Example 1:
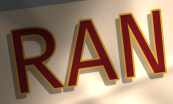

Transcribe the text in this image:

RAN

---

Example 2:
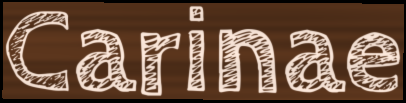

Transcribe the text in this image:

Carinae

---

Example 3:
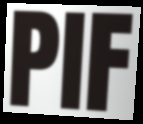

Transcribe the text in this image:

PIF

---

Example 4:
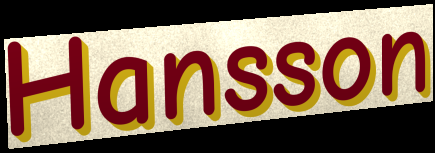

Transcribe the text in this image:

Hansson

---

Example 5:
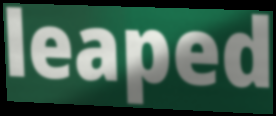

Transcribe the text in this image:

leaped